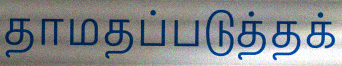
தாமதப்படுத்தக்